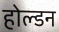
होल्डन